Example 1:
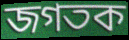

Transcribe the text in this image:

জগতক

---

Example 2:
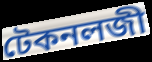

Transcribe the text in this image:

টেকনলজী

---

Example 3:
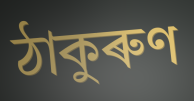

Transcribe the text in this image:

ঠাকুৰুণ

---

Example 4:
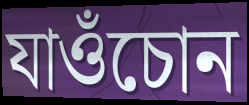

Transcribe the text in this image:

যাওঁচোন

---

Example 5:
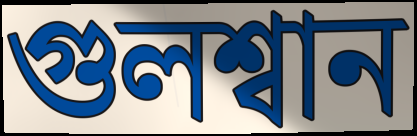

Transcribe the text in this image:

গুলশ্বান